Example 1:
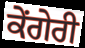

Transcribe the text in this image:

ਕੇਂਗੇਰੀ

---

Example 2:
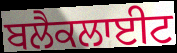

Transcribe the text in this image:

ਬਲੈਕਲਾਈਟ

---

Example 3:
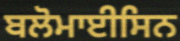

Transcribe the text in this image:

ਬਲੋਮਾਈਸਿਨ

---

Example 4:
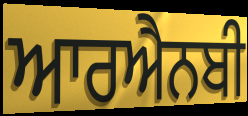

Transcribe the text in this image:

ਆਰਐਨਬੀ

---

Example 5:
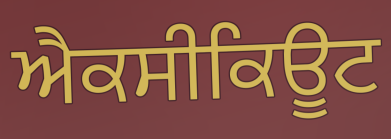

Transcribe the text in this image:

ਐਕਸੀਕਿਊਟ